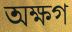
অক্ষগ